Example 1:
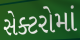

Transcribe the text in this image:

સેક્ટરોમાં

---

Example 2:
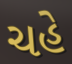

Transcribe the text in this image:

ચહે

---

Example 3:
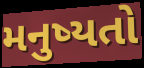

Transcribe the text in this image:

મનુષ્યતો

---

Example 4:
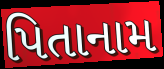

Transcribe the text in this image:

પિતાનામ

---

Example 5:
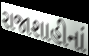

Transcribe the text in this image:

રાજાશાહીનાં